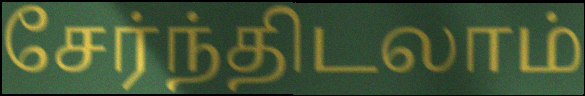
சேர்ந்திடலாம்